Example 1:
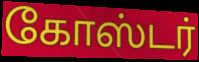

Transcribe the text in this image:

கோஸ்டர்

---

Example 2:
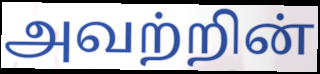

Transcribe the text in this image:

அவற்றின்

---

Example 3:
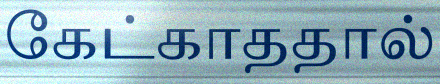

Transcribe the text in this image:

கேட்காததால்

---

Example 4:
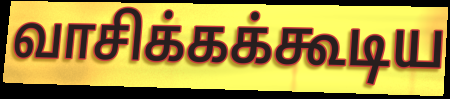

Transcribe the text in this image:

வாசிக்கக்கூடிய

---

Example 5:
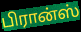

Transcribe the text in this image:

பிரான்ஸ்